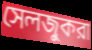
সেলজুকরা